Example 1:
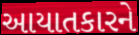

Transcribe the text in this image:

આયાતકારને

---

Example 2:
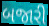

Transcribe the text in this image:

બજારી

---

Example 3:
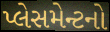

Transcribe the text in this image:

પ્લેસમેન્ટનો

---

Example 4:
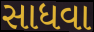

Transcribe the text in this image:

સાધવા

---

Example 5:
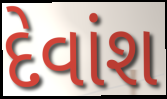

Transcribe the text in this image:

દેવાંશ